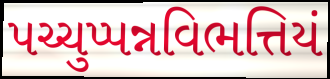
પચ્ચુપ્પન્નવિભત્તિયં